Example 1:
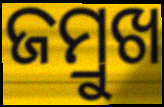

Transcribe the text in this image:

ଜମ୍ରୁଖ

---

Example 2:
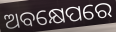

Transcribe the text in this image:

ଅବକ୍ଷେପରେ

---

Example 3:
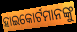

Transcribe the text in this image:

ହାଇକୋର୍ଟମାନଙ୍କୁ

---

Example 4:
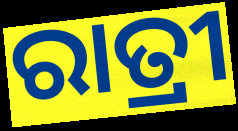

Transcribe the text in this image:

ରାତ୍ରୀ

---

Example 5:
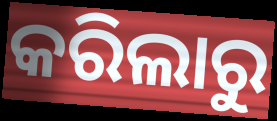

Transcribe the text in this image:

କରିଲାରୁ